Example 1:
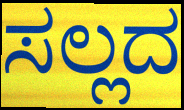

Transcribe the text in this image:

ಸಲ್ಲದ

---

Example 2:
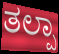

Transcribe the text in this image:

ತಲ್ಪಾ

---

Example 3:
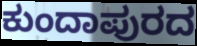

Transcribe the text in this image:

ಕುಂದಾಪುರದ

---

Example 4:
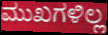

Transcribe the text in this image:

ಮುಖಗಳಿಲ್ಲ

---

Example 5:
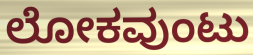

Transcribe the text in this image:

ಲೋಕವುಂಟು